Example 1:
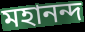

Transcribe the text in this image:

মহানন্দ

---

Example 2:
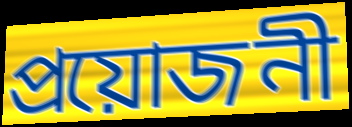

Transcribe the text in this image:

প্রয়োজনী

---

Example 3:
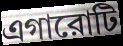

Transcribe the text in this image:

এগারোটি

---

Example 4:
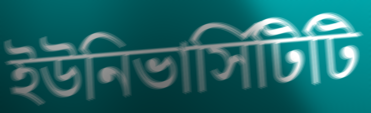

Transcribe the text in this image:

ইউনিভার্সিটিটি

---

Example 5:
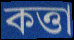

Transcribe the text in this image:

কত্তা